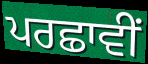
ਪਰਛਾਵੀਂ